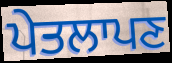
ਪੇਤਲਾਪਣ